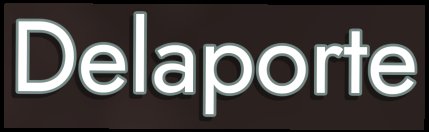
Delaporte